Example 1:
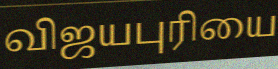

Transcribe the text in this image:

விஜயபுரியை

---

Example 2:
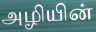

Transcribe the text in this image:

அழியின்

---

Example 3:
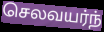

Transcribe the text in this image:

செலவயர்ந்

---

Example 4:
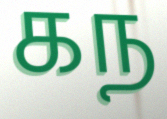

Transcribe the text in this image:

கந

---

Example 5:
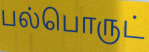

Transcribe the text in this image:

பல்பொருட்